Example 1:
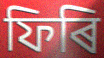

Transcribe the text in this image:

ফিৰি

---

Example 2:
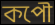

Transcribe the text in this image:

কপৌ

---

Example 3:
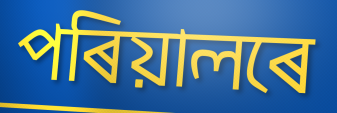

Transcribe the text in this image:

পৰিয়ালৰে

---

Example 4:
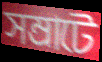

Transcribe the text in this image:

সম্ৰাটে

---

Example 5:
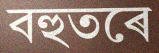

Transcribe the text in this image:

বহুতৰে